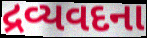
દ્રવ્યવદના